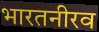
भारतनीरव